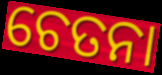
ଚେତନା